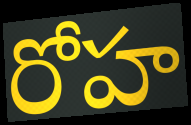
రోహ